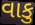
વાકુ